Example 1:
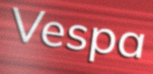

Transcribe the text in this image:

Vespa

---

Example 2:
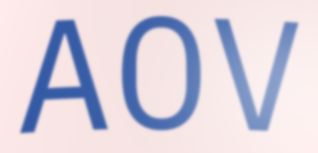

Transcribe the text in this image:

AOV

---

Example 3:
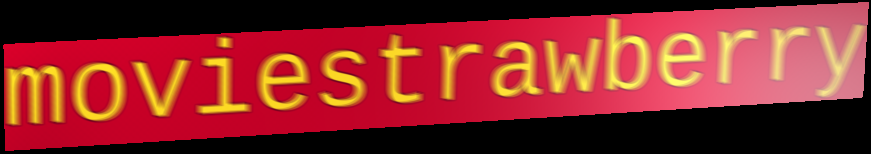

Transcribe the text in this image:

moviestrawberry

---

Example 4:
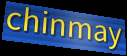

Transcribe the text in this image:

chinmay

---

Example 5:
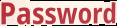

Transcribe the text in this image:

Password